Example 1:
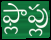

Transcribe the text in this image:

ఫ్లాప్లు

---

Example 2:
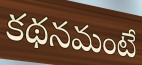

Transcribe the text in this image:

కథనమంటే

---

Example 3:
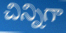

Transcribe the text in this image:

చిన్నిగా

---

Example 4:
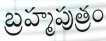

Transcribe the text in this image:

బ్రహ్మపుత్రం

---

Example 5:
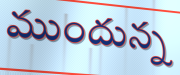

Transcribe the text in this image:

ముందున్న